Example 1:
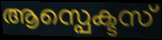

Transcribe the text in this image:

ആസ്പെക്ടസ്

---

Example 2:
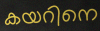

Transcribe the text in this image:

കയറിനെ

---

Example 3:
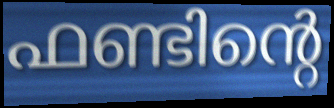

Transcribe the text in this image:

ഫണ്ടിന്റെ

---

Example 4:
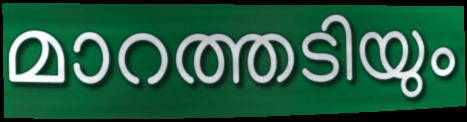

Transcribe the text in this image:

മാറത്തടിയും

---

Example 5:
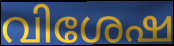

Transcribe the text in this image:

വിശേഷ